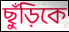
ছুঁড়িকে